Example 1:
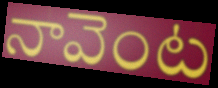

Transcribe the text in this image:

నావెంట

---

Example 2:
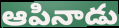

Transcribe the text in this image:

ఆపినాడు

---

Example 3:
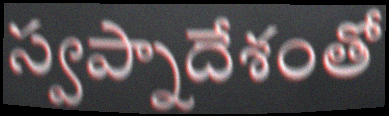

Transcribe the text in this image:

స్వప్నాదేశంతో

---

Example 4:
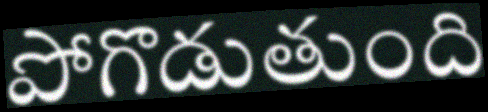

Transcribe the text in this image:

పోగొడుతుంది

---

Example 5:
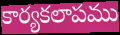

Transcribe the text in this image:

కార్యకలాపము